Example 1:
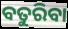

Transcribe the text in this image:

ବତୁରିବା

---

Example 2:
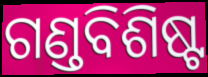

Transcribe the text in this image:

ଗଣ୍ଡବିଶିଷ୍ଟ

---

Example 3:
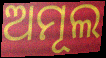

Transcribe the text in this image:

ଅମୂଲ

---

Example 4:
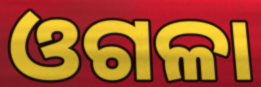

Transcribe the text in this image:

ଓଗଳା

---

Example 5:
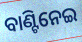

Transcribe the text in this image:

ବାଣ୍ଟିନେଇ